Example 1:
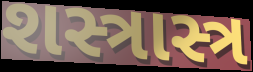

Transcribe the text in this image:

શસ્ત્રાસ્ત્ર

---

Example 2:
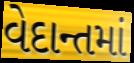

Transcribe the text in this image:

વેદાન્તમાં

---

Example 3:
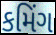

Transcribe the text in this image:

કમિંગ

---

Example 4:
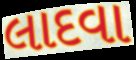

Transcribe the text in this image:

લાદવા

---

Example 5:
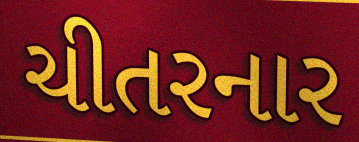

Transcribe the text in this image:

ચીતરનાર